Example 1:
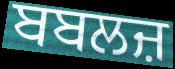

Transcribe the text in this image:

ਬਬਲਜ਼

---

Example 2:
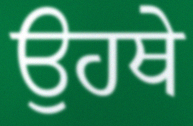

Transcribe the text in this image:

ਉਹਥੇ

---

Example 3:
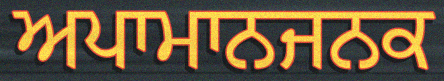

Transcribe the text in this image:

ਅਪਾਮਾਨਜਨਕ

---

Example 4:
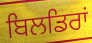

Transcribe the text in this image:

ਬਿਲਡਿਰਾਂ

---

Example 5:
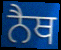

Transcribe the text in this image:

ਨੈਥ